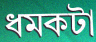
ধমকটা